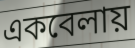
একবেলায়